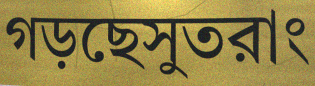
গড়ছেসুতরাং